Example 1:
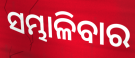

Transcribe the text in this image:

ସମ୍ଭାଳିବାର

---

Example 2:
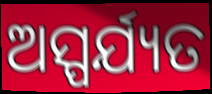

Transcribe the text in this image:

ଅସ୍ପର୍ଯ୍ୟତ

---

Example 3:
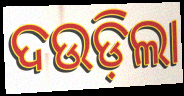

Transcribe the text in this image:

ଦଉଡ଼ିଲା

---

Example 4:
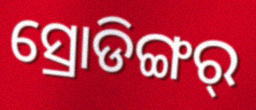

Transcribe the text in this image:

ସ୍ରୋଡିଙ୍ଗର୍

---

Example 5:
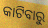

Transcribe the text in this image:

କାଟିବାରୁ